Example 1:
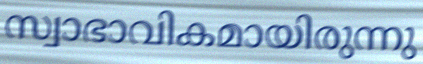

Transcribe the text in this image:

സ്വാഭാവികമായിരുന്നു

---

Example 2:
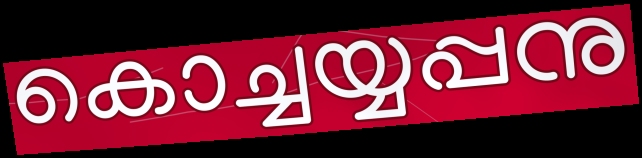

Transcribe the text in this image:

കൊച്ചയ്യപ്പനു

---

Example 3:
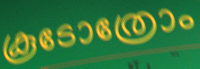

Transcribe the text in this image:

കൂടോത്രോം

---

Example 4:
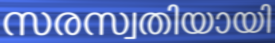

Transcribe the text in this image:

സരസ്വതിയായി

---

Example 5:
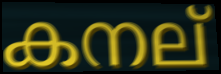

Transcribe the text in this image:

കനല്